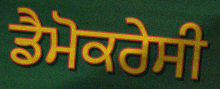
ਡੈਮੋਕਰੇਸੀ